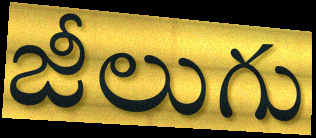
జీలుగు